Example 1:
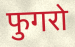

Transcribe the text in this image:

फुगरो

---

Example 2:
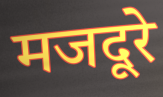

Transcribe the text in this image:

मजदूरे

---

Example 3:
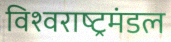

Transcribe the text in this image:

विश्वराष्ट्रमंडल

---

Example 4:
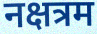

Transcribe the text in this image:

नक्षत्रम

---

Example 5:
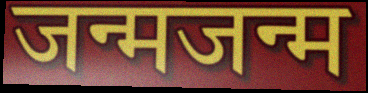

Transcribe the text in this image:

जन्मजन्म